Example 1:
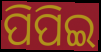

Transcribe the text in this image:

ପିପିଇ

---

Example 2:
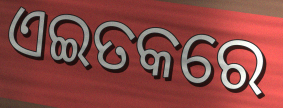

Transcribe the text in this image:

ଏଇତକରେ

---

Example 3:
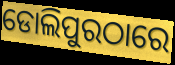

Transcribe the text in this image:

ଡୋଲିପୁରଠାରେ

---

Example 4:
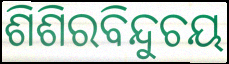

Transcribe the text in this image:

ଶିଶିରବିନ୍ଦୁଚୟ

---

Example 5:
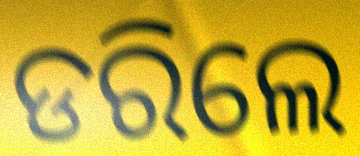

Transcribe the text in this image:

ଡରିଲେ